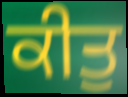
ਕੀਤੁ